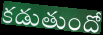
కడుతుందో